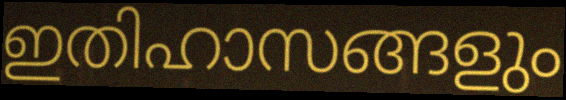
ഇതിഹാസങ്ങളും